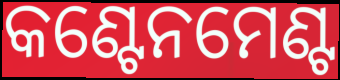
କଣ୍ଟେନମେଣ୍ଟ